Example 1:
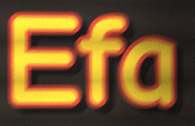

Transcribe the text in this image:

Efa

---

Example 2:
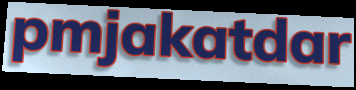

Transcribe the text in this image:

pmjakatdar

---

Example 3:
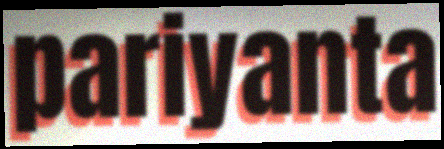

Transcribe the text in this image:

pariyanta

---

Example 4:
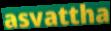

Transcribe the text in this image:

asvattha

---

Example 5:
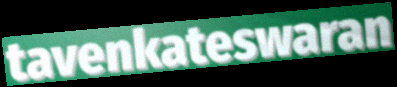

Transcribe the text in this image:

tavenkateswaran